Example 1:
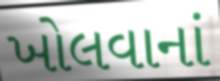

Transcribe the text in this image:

ખોલવાનાં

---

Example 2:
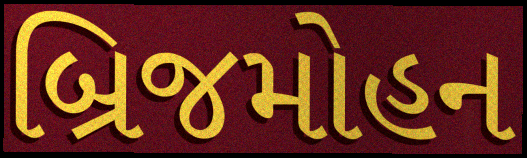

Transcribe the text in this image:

બ્રિજમોહન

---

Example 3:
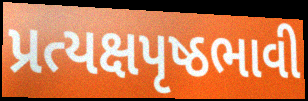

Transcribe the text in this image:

પ્રત્યક્ષપૃષ્ઠભાવી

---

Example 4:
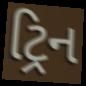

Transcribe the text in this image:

ટ્રિન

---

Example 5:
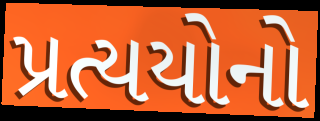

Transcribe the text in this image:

પ્રત્યયોનો